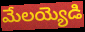
మేలయ్యెడి